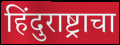
हिंदुराष्ट्राचा